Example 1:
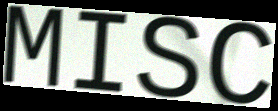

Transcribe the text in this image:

MISC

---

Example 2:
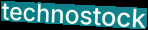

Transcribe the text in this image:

technostock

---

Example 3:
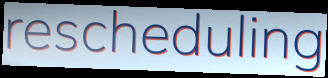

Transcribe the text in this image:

rescheduling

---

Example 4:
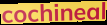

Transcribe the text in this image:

cochineal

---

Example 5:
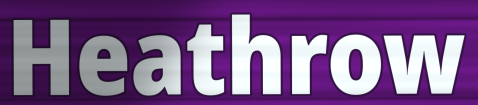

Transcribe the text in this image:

Heathrow